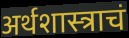
अर्थशास्त्राचं